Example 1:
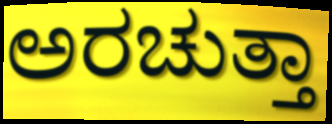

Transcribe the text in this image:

ಅರಚುತ್ತಾ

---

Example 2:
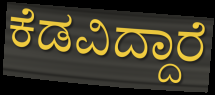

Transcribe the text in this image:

ಕೆಡವಿದ್ದಾರೆ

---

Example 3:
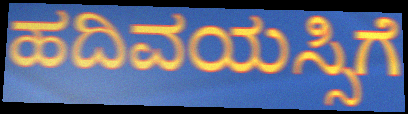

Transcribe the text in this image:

ಹದಿವಯಸ್ಸಿಗೆ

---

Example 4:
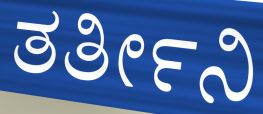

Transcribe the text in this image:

ತರ್ತೀನಿ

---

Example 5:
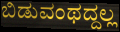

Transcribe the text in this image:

ಬಿಡುವಂಥದ್ದಲ್ಲ